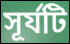
সূর্যটি